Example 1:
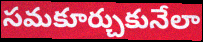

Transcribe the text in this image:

సమకూర్చుకునేలా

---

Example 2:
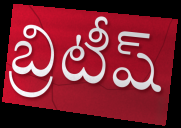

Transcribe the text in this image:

బ్రిటీష్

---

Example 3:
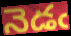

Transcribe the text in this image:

నెడఁ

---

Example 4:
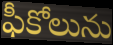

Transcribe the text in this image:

ఫీకోలును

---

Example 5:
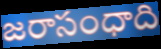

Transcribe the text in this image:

జరాసంధాది